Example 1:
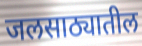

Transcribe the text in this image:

जलसाठ्यातील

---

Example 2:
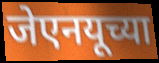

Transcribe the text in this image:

जेएनयूच्या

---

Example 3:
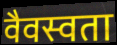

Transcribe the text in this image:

वैवस्वता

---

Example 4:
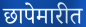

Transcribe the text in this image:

छापेमारीत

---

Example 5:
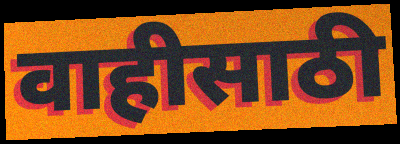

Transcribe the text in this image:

वाहीसाठी